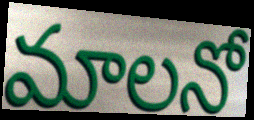
మాలనో